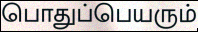
பொதுப்பெயரும்